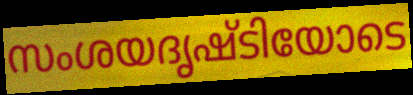
സംശയദൃഷ്ടിയോടെ